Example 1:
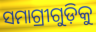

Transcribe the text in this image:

ସମାଗ୍ରୀଗୁଡ଼ିକୁ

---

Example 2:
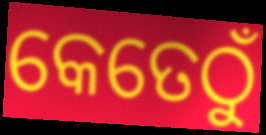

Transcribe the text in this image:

କେତେଠୁଁ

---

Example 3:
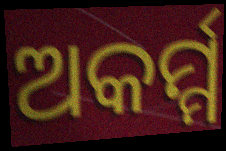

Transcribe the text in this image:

ଅକର୍ମ୍ମ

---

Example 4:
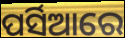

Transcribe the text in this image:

ପର୍ସିଆରେ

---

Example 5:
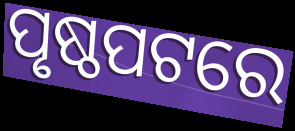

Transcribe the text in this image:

ପୃଷ୍ଠପଟରେ